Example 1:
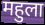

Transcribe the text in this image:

महुला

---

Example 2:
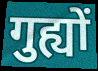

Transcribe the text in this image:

गुह्यों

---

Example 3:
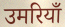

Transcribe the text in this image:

उमरियाँ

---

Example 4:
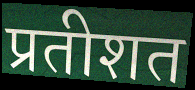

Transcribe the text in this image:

प्रतीशत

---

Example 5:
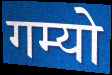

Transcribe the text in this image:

गम्यो